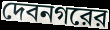
দেবনগরের